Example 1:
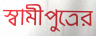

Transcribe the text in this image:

স্বামীপুত্রের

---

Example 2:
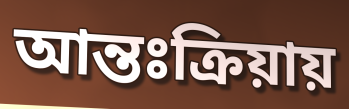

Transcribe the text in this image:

আন্তঃক্রিয়ায়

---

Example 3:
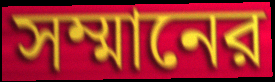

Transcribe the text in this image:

সম্মানের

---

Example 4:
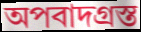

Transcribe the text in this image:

অপবাদগ্রস্ত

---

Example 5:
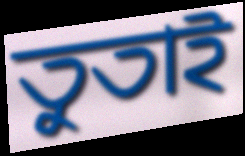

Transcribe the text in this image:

তুতাই